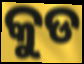
କୁଡ